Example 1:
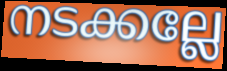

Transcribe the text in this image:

നടക്കല്ലേ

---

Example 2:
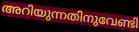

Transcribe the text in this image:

അറിയുന്നതിനുവേണ്ടി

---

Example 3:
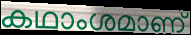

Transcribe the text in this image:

കഥാംശമാണ്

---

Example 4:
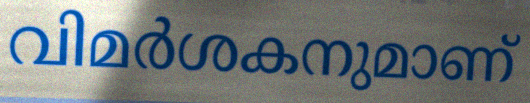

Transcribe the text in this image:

വിമർശകനുമാണ്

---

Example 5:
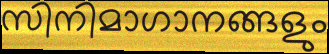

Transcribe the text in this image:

സിനിമാഗാനങ്ങളും